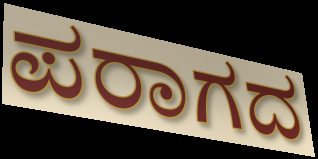
ಪರಾಗದ